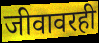
जीवावरही